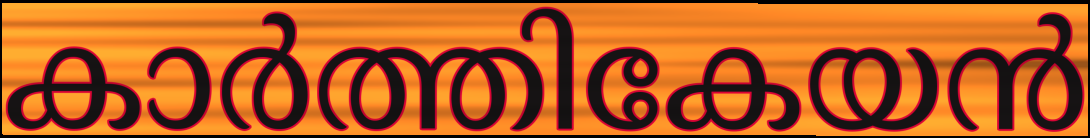
കാർത്തികേയൻ